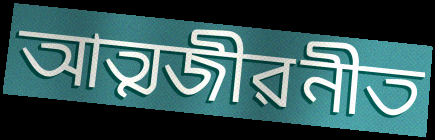
আত্মজীৱনীত